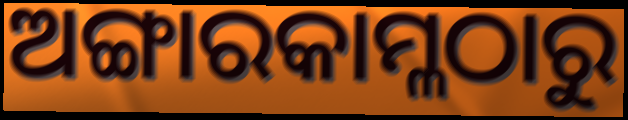
ଅଙ୍ଗାରକାମ୍ଳଠାରୁ